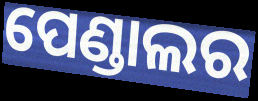
ପେଣ୍ଡାଲର